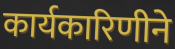
कार्यकारिणीने